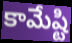
కామేష్టి